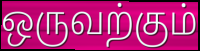
ஒருவற்கும்